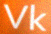
Vk